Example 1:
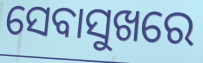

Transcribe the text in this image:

ସେବାସୁଖରେ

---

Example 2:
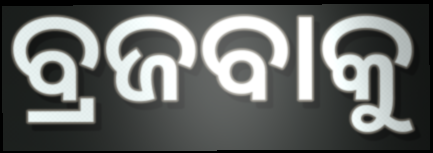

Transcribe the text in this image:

ବ୍ରଜବାକୁ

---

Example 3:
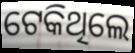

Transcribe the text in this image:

ଟେକିଥିଲେ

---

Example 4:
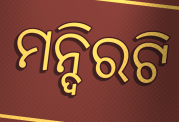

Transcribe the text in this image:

ମନ୍ଦିରଟି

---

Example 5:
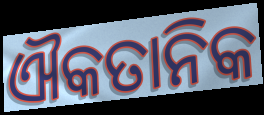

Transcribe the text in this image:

ଐକତାନିକ